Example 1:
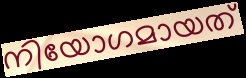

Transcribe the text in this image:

നിയോഗമായത്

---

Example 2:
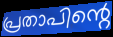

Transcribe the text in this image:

പ്രതാപിന്റെ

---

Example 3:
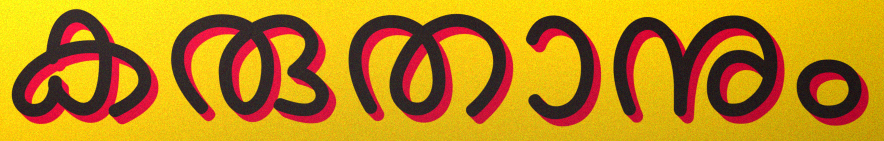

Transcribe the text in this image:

കരുതാനും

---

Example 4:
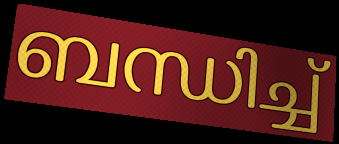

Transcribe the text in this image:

ബന്ധിച്ച്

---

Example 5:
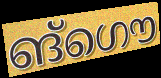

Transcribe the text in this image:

ങ്ഗൌ